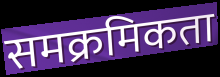
समक्रमिकता